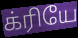
க்ரியே